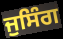
ਜੁਸਿੰਗ